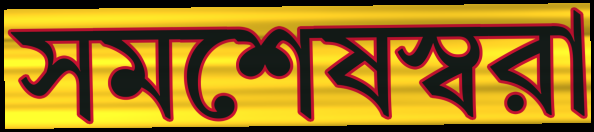
সমশেষস্বরা